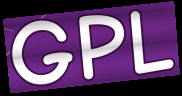
GPL